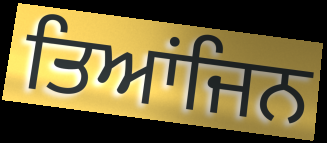
ਤਿਆਂਜਿਨ